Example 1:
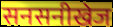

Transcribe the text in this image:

सनसनीखेज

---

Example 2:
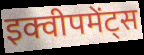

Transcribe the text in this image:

इक्वीपमेंट्स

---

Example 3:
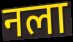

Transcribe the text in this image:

नला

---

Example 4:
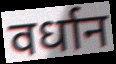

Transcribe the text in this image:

वर्धान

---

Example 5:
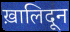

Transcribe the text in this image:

ख़ालिदून